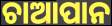
ଚାଆପାନ